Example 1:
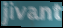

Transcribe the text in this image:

jivant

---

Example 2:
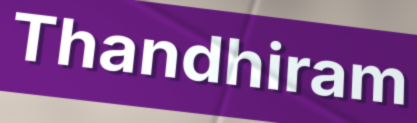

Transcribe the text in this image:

Thandhiram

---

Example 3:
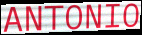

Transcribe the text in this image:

ANTONIO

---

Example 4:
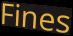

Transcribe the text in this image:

Fines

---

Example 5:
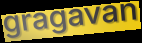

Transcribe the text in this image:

gragavan